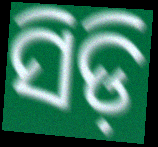
ସିଡ଼ି